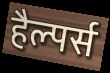
हैल्पर्स